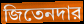
জিতেনদার